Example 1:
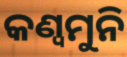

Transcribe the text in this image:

କଣ୍ୱମୁନି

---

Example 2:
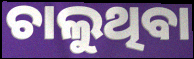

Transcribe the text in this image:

ଚାଲୁଥିବା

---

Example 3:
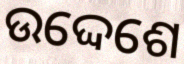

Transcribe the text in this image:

ଉଦ୍ଦେଶେ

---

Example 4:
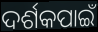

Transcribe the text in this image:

ଦର୍ଶକପାଇଁ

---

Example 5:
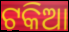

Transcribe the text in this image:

ଟକିଆ